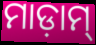
ମାଡ଼ାମ୍